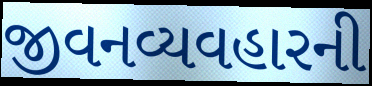
જીવનવ્યવહારની